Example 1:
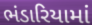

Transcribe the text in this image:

ભંડારિયામાં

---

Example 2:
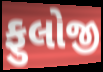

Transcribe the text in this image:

ફુલોજી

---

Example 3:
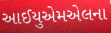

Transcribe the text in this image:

આઈયુએમએલના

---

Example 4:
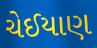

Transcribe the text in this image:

ચેઈયાણ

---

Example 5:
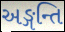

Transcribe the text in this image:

અઙ્ગન્તિ